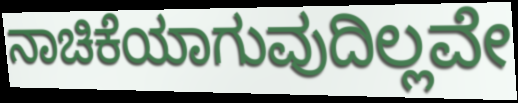
ನಾಚಿಕೆಯಾಗುವುದಿಲ್ಲವೇ